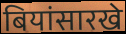
बियांसारखे